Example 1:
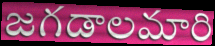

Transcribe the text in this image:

జగడాలమారి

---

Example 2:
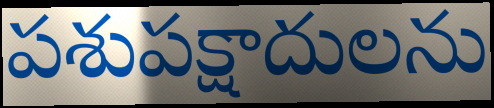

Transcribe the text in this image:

పశుపక్షాదులను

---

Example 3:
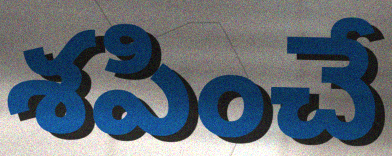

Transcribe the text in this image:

శపించే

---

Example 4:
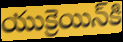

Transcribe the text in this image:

యుక్రెయిన్‌కి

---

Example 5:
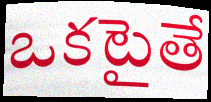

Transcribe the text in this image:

ఒకటైతే